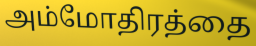
அம்மோதிரத்தை